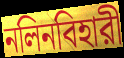
নলিনবিহারী